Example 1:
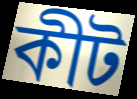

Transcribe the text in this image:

কীট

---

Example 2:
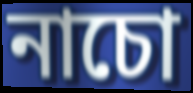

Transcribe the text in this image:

নাচো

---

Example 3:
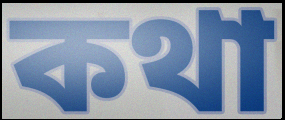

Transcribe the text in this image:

কথা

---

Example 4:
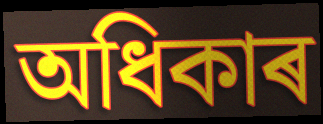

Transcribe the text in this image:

অধিকাৰ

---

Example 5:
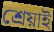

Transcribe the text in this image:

শ্ৰেয়াই